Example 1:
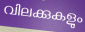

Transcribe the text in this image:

വിലക്കുകളും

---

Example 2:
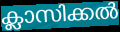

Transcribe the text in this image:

ക്ലാസിക്കൽ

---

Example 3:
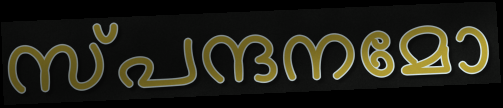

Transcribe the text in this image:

സ്പന്ദനമോ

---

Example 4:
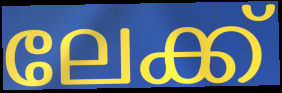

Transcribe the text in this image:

ലേക്ക്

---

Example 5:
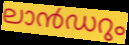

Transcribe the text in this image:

ലാൻഡറും